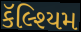
કૅલ્શ્યિમ